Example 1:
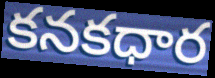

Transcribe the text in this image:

కనకధార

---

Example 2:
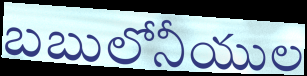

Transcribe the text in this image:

బబులోనీయుల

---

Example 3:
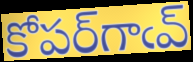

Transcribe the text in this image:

కోపర్‌గాఁవ్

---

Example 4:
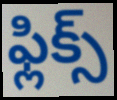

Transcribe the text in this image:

ఫ్లిక్స్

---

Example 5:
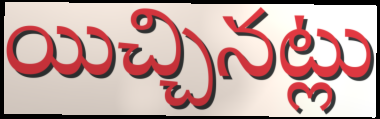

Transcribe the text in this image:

యిచ్చినట్లు